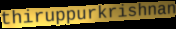
thiruppurkrishnan